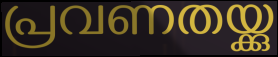
പ്രവണതയ്ക്കു